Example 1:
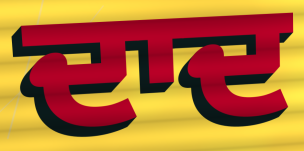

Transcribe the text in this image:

ਦਾਦ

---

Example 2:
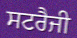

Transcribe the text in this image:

ਸਟਰੈਜੀ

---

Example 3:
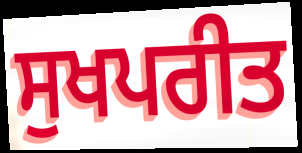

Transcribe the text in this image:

ਸੁਖਪਰੀਤ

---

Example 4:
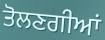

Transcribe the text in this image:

ਤੋਲਣਗੀਆਂ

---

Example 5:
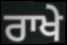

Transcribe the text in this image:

ਰਾਖੇ